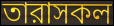
তারাসকল